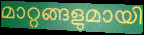
മാറ്റങ്ങളുമായി